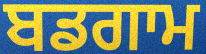
ਬਡਗਾਮ